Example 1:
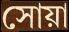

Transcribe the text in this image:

সোয়া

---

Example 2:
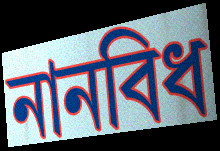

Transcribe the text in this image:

নানবিধ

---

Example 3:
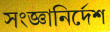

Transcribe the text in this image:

সংজ্ঞানির্দেশ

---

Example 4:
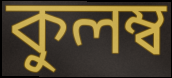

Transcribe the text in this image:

কুলম্ব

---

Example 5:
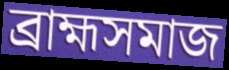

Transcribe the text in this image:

ব্রাহ্মসমাজ